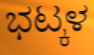
ಭಟ್ಕಳ